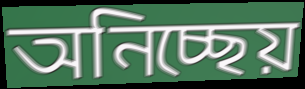
অনিচ্ছেয়